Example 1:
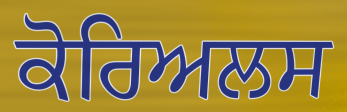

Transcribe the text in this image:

ਕੋਰਿਅਲਸ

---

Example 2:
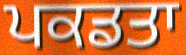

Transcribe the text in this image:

ਪਕਡਤਾ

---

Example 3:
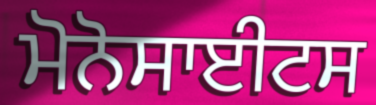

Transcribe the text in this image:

ਮੋਨੋਸਾਈਟਸ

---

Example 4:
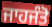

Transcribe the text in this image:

ਜਾਹਜੰਤੋ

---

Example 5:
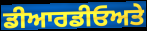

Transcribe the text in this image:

ਡੀਆਰਡੀਓਅਤੇ